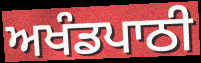
ਅਖੰਡਪਾਠੀ